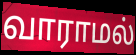
வாராமல்